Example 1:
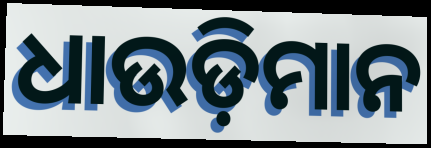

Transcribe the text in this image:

ଧାଉଡ଼ିମାନ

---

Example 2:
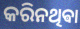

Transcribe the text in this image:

କରିନଥିଵା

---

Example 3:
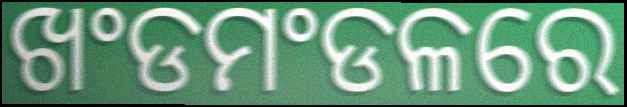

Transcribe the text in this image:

ଖଂଡମଂଡଳରେ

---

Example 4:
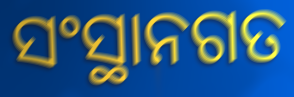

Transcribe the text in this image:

ସଂସ୍ଥାନଗତ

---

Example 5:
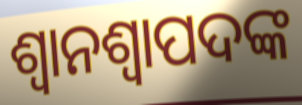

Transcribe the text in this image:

ଶ୍ୱାନଶ୍ୱାପଦଙ୍କ